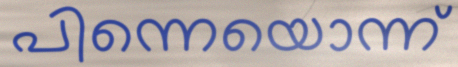
പിന്നെയൊന്ന്